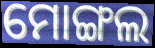
ମୋଙ୍ଗଲ